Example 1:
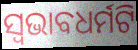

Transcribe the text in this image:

ସ୍ଵଭାବଧର୍ମଟି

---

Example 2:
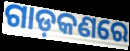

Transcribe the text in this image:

ଗାଡ଼କଣରେ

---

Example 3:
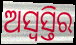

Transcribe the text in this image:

ଅସ୍ୱସ୍ତିର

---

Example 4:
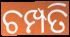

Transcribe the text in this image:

ଚମ୍ପତି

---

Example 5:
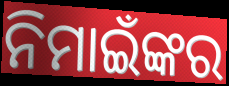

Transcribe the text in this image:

ନିମାଇଁଙ୍କର